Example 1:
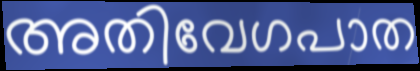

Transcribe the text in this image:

അതിവേഗപാത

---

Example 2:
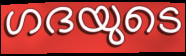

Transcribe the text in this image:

ഗദയുടെ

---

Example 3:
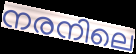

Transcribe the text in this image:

നരനിലെ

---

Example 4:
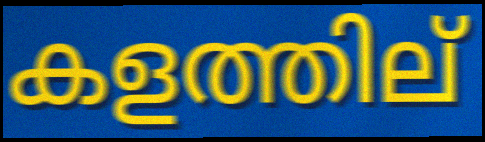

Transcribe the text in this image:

കളത്തില്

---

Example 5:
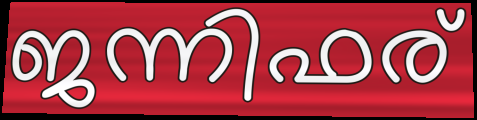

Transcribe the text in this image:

ജന്നിഫര്